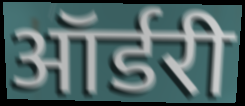
ऑर्डरी